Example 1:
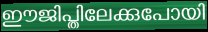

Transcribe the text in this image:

ഈജിപ്തിലേക്കുപോയി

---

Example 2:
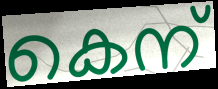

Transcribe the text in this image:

കെന്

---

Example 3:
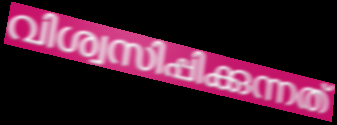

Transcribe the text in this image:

വിശ്വസിപ്പിക്കുന്നത്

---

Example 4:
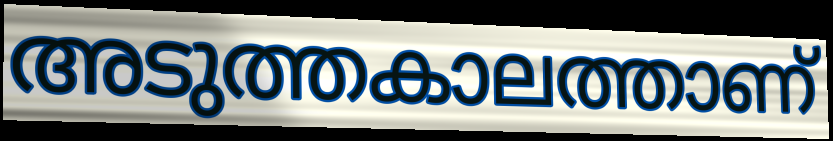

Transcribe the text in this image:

അടുത്തകാലത്താണ്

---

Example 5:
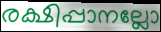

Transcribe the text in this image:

രക്ഷിപ്പാനല്ലോ